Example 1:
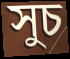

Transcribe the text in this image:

সুচ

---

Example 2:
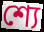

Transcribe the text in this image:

শ্যে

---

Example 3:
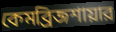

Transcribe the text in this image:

কেমব্রিজশায়ার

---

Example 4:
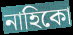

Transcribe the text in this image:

নাহিকো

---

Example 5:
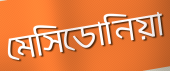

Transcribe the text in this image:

মেসিডোনিয়া